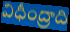
విధీంద్రాది